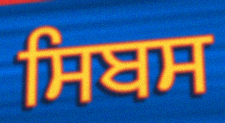
ਸਿਬਸ